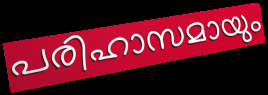
പരിഹാസമായും